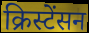
क्रिस्टेंसन